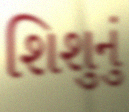
શિશુનું